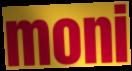
moni